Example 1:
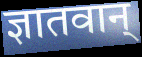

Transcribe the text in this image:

ज्ञातवान्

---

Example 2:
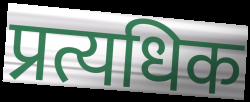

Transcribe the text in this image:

प्रत्यधिक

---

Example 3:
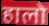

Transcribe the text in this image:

हालो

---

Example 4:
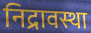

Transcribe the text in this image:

निद्रावस्था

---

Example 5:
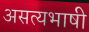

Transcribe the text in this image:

असत्यभाषी